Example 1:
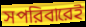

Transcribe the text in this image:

সপরিবারেই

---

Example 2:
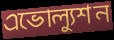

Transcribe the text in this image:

এভোল্যুশন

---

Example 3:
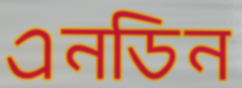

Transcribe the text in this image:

এনডিন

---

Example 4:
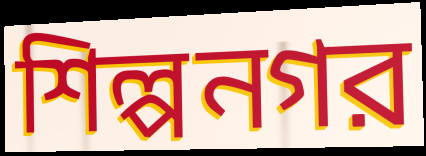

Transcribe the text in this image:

শিল্পনগর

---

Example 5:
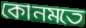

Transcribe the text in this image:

কোনমতে